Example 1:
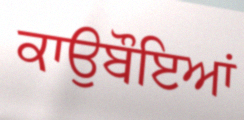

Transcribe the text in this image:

ਕਾਉਬੌਇਆਂ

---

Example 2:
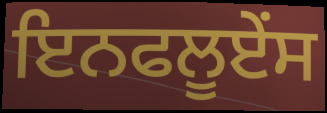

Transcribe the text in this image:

ਇਨਫਲੂਏਂਸ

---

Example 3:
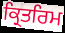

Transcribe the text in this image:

ਕ੍ਰਿਤਰਿਮ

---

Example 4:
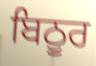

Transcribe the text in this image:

ਬਿਠੂਰ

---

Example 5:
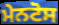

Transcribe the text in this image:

ਮੇਨਟੋਸ